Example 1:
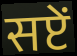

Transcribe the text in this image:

सप्टें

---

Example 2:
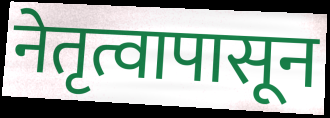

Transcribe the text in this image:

नेतृत्वापासून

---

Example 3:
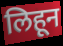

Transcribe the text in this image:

लिहून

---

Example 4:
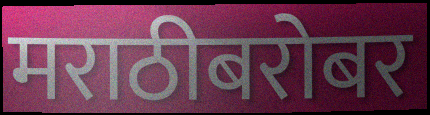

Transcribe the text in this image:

मराठीबरोबर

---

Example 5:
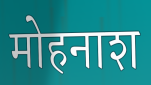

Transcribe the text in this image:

मोहनाश